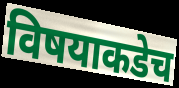
विषयाकडेच